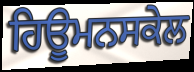
ਹਿਊਮਨਸਕੇਲ